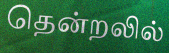
தென்றலில்